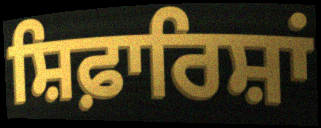
ਸ਼ਿਫ਼ਾਰਿਸ਼ਾਂ